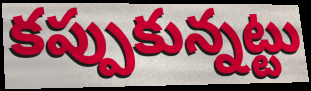
కప్పుకున్నట్టు